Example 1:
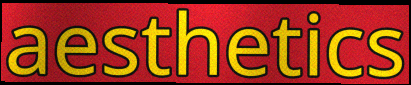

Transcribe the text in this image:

aesthetics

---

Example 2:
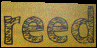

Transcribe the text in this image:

reed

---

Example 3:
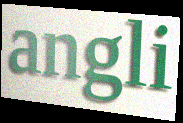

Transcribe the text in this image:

angli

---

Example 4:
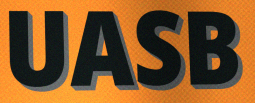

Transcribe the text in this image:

UASB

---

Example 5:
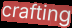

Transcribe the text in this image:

crafting